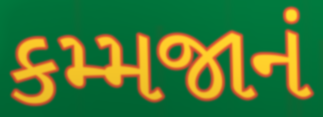
કમ્મજાનં